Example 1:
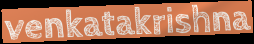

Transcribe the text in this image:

venkatakrishna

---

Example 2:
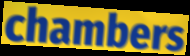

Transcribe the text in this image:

chambers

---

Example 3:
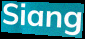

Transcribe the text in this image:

Siang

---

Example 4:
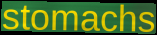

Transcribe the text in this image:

stomachs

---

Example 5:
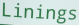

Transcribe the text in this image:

Linings